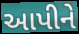
આપીને